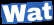
Wat